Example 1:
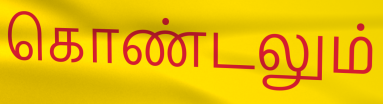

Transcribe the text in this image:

கொண்டலும்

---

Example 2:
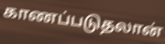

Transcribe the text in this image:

காணப்படுதலான்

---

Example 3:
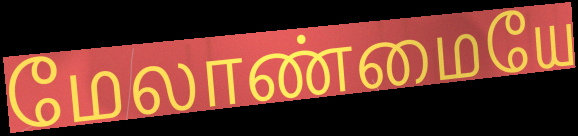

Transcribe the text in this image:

மேலாண்மையே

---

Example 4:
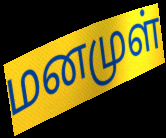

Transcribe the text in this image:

மனமுள்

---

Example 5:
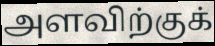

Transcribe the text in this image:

அளவிற்குக்